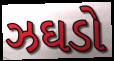
ઝઘડો